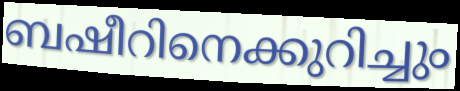
ബഷീറിനെക്കുറിച്ചും